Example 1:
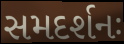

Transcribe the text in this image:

સમદર્શનઃ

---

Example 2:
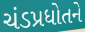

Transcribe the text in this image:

ચંડપ્રધોતને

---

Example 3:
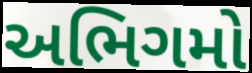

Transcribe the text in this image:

અભિગમો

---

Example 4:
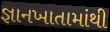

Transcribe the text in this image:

જ્ઞાનખાતામાંથી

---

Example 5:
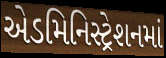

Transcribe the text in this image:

એડમિનિસ્ટ્રેશનમાં